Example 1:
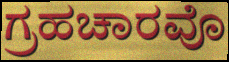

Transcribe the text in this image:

ಗ್ರಹಚಾರವೊ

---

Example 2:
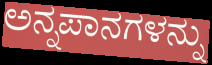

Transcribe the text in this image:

ಅನ್ನಪಾನಗಳನ್ನು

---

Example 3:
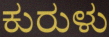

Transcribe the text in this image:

ಕುರುಳು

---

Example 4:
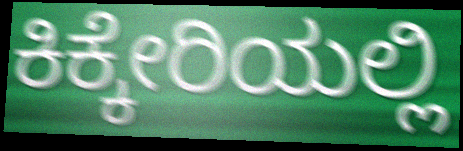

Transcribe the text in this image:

ಕಿಕ್ಕೇರಿಯಲ್ಲಿ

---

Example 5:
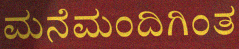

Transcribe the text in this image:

ಮನೆಮಂದಿಗಿಂತ